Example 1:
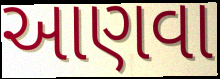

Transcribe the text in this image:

આણવા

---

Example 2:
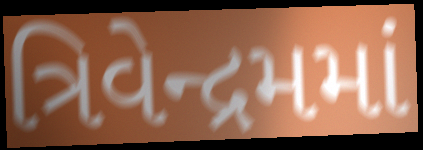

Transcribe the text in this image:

ત્રિવેન્દ્રમમાં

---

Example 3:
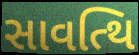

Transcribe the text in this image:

સાવત્થિ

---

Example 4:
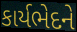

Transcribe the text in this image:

કાર્યભેદને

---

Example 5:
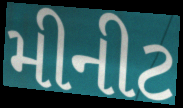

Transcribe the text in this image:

મીનીટ